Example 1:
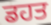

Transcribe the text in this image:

ਡਹਤ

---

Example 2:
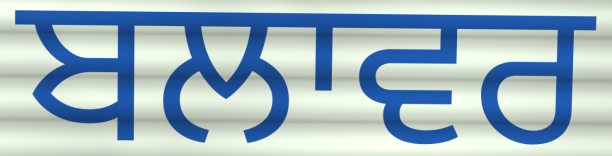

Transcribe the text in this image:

ਬਲਾਵਰ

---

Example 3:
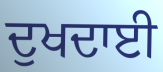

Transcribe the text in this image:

ਦੁਖਦਾਈ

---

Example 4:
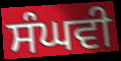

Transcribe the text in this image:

ਸੰਘਵੀ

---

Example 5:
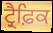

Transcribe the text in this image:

ਟ੍ਰੈਫ਼ਿਕ